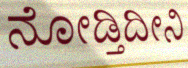
ನೋಡ್ತಿದೀನಿ